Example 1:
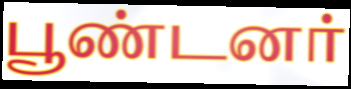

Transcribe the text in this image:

பூண்டனர்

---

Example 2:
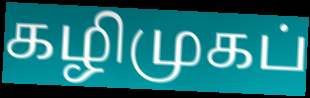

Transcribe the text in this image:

கழிமுகப்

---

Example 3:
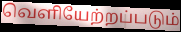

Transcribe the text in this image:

வெளியேற்றப்படும்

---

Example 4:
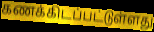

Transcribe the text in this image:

கணக்கிடப்பட்டுள்ளது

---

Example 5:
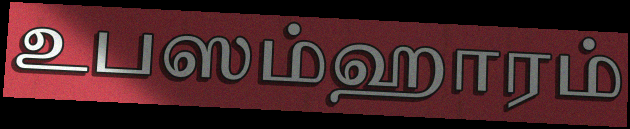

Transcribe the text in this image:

உபஸம்ஹாரம்